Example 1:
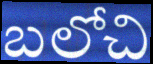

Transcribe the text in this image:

బలోచి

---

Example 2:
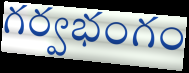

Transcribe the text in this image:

గర్వభంగం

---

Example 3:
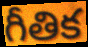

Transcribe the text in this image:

గీతిక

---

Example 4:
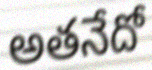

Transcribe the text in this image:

అతనేదో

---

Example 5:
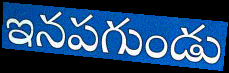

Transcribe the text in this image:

ఇనపగుండు